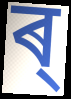
ৰ্